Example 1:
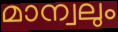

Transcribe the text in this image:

മാന്വലും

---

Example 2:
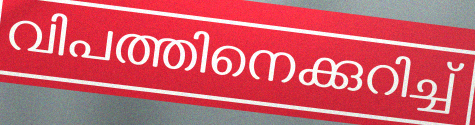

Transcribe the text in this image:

വിപത്തിനെക്കുറിച്ച്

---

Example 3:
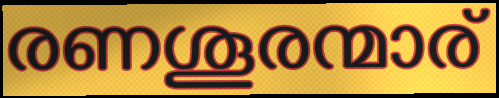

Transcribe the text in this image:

രണശൂരന്മാര്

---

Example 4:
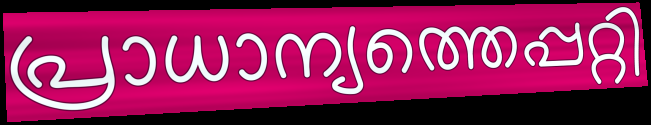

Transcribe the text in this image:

പ്രാധാന്യത്തെപ്പറ്റി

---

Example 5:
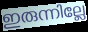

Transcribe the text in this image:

ഇരുന്നില്ലേ